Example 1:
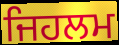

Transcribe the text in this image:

ਜਿਹਲਮ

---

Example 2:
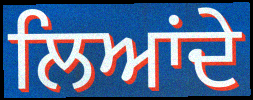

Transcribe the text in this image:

ਲਿਆਂਦੇ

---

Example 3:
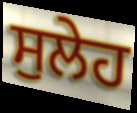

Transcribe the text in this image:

ਸੁਲੇਹ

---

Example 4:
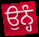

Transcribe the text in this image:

ਉਨ੍ਹੰ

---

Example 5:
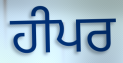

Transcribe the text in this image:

ਹੀਪਰ